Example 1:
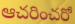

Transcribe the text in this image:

ఆచరించరో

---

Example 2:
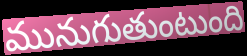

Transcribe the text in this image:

మునుగుతుంటుంది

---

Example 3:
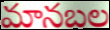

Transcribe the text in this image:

మానబల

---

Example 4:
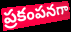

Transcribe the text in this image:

ప్రకంపనగా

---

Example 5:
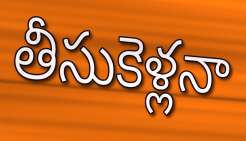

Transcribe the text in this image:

తీసుకెళ్లనా